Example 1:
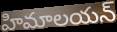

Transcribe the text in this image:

హిమాలయన్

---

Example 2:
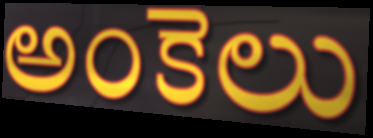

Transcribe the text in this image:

అంకెలు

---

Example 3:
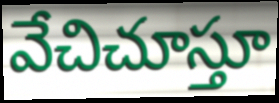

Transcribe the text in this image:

వేచిచూస్తూ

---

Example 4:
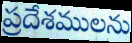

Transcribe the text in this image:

ప్రదేశములను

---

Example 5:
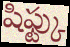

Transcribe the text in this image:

షిఫ్ట్కు